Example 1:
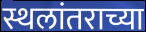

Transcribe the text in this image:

स्थलांतराच्या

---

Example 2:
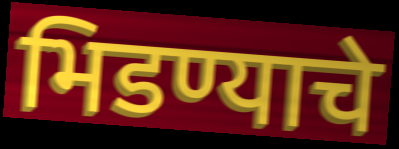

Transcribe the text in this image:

भिडण्याचे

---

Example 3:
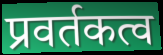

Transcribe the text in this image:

प्रवर्तकत्व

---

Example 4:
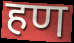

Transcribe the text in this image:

हण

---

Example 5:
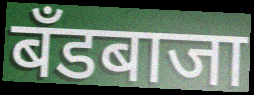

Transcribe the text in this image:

बँडबाजा